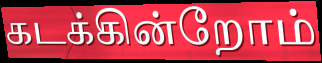
கடக்கின்றோம்